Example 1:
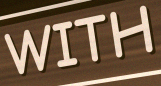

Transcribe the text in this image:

WITH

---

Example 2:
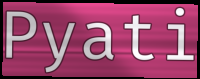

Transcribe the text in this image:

Pyati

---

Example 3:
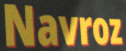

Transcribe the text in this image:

Navroz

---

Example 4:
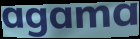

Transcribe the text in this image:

agama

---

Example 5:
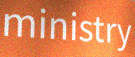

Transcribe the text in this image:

ministry